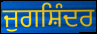
ਜੁਗਸ਼ਿੰਦਰ